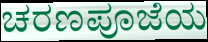
ಚರಣಪೂಜೆಯ